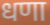
धणा